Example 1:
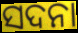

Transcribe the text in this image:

ସଦନା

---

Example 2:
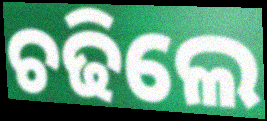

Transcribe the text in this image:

ଚଢିଲେ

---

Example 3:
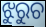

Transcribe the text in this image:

ଝୁରୁଚ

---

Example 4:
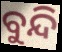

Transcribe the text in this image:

ବୁନ୍ଦି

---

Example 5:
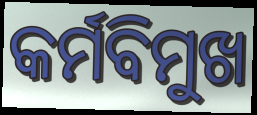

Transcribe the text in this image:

କର୍ମବିମୁଖ